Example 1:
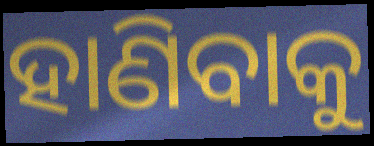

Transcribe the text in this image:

ହାଣିବାକୁ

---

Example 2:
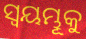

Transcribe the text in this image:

ସ୍ଵୟମ୍ଭୂକୁ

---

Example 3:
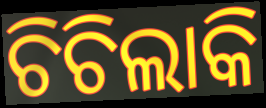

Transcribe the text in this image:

ଚିଚିଲାକି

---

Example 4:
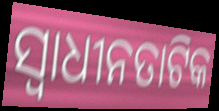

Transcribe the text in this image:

ସ୍ୱାଧୀନତାଟିକ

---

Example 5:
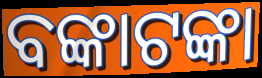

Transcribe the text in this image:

ବଙ୍କାଟଙ୍କା